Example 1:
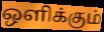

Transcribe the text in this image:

ஒளிக்கும்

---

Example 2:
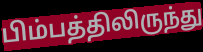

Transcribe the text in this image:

பிம்பத்திலிருந்து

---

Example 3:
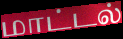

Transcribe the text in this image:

மாட்டல்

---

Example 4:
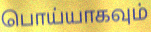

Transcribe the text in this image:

பொய்யாகவும்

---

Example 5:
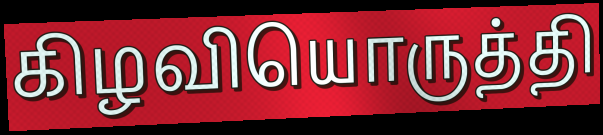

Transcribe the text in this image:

கிழவியொருத்தி